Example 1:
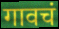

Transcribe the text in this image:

गावचं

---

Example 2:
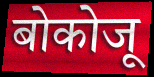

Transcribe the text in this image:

बोकोजू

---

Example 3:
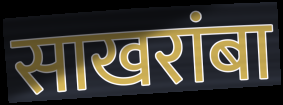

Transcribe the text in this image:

साखरांबा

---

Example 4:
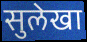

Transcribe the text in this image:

सुलेखा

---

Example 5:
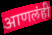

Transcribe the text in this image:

आणलंही